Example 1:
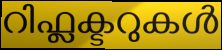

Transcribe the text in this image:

റിഫ്ലക്ടറുകൾ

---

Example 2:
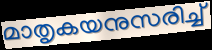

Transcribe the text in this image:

മാതൃകയനുസരിച്ച്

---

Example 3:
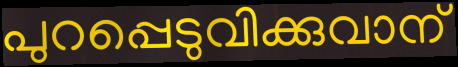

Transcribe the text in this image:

പുറപ്പെടുവിക്കുവാന്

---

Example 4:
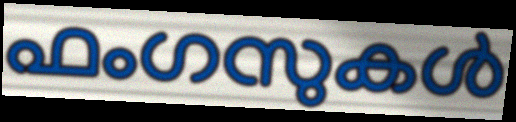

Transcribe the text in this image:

ഫംഗസുകൾ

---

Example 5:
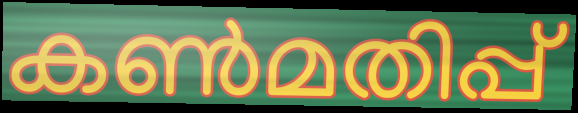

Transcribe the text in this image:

കൺമതിപ്പ്